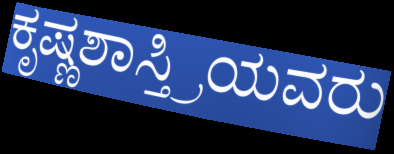
ಕೃಷ್ಣಶಾಸ್ತ್ರಿಯವರು